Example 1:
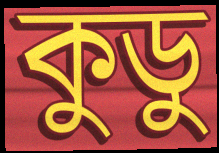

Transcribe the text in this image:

কুডু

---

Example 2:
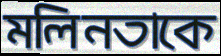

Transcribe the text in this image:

মলিনতাকে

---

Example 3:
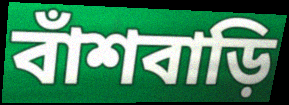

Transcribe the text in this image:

বাঁশবাড়ি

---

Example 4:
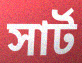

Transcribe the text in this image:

সার্ট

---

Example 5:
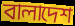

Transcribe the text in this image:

বালাদেশ